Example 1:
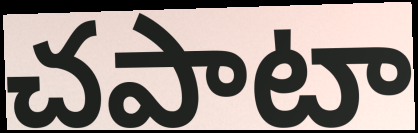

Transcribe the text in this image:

చపాటా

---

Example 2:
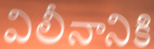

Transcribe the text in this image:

విలీనానికి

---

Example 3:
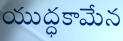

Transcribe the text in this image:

యుద్ధకామేన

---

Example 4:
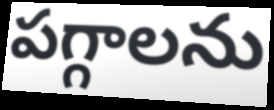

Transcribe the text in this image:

పగ్గాలను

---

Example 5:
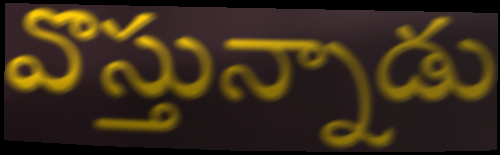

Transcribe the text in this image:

వొస్తున్నాడు